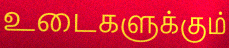
உடைகளுக்கும்